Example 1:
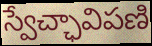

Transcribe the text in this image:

స్వేచ్ఛావిపణి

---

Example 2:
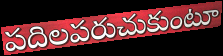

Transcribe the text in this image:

పదిలపరుచుకుంటూ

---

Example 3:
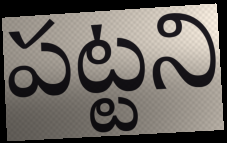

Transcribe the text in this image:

పట్టని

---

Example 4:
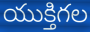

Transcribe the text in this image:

యుక్తిగల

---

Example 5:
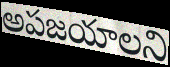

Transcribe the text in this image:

అపజయాలని